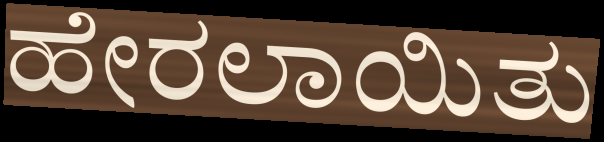
ಹೇರಲಾಯಿತು